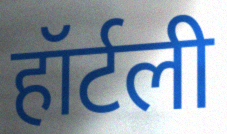
हॉर्टली